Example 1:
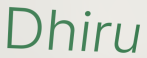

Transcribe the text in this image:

Dhiru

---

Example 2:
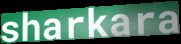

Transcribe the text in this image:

sharkara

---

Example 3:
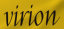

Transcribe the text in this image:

virion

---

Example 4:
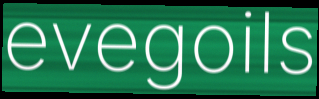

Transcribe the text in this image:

evegoils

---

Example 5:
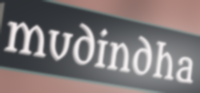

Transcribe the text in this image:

mudindha